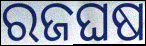
ରଜଘଷ